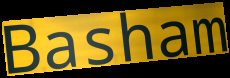
Basham